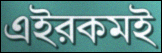
এইরকমই